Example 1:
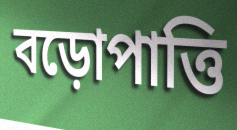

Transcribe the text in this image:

বড়োপাত্তি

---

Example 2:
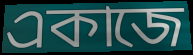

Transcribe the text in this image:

একাজে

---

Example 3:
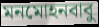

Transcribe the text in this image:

মনমোহনবাবু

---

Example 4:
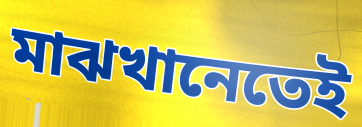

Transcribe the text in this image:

মাঝখানেতেই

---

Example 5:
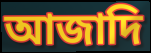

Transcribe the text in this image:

আজাদি